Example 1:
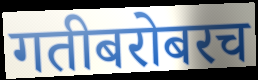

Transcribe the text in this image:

गतीबरोबरच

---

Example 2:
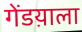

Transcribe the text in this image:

गेंडय़ाला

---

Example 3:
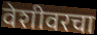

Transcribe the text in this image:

वेशीवरचा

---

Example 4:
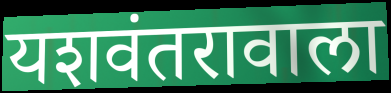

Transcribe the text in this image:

यशवंतरावाला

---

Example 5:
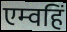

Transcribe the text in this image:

एम्वहिं